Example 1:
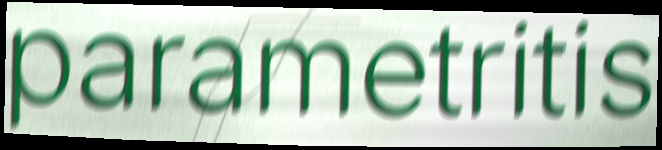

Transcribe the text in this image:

parametritis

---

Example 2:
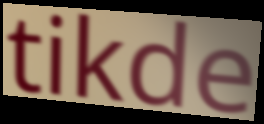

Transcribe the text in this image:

tikde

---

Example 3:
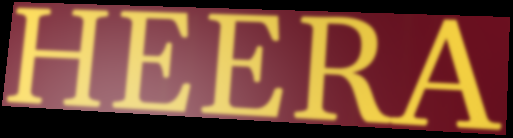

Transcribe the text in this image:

HEERA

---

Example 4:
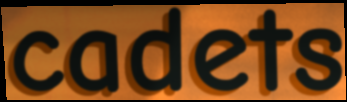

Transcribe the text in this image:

cadets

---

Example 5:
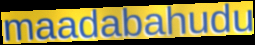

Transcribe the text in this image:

maadabahudu